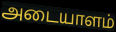
அடையாளம்